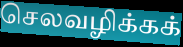
செலவழிக்கக்